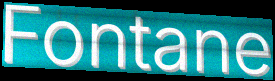
Fontane